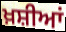
ਖ਼ਸ਼ੀਆਂ